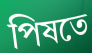
পিষতে